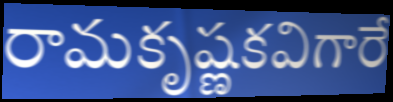
రామకృష్ణకవిగారే